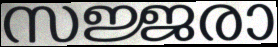
സജ്ജരാ